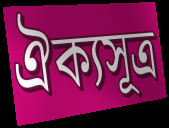
ঐক্যসূত্র